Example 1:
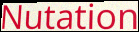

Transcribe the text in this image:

Nutation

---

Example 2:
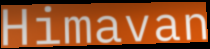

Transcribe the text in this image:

Himavan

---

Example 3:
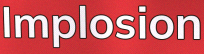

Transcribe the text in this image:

Implosion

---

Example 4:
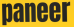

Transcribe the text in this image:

paneer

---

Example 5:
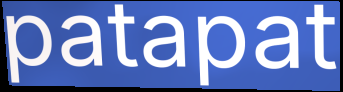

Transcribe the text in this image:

patapat